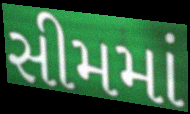
સીમમાં